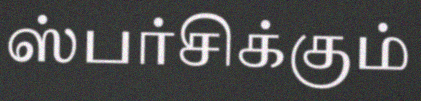
ஸ்பர்சிக்கும்